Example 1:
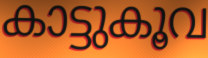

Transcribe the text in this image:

കാട്ടുകൂവ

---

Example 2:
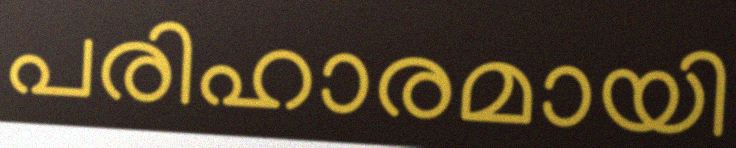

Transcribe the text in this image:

പരിഹാരമായി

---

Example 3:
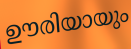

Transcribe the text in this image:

ഊരിയായും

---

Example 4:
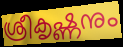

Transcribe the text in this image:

ശ്രീകൃഷ്ണനും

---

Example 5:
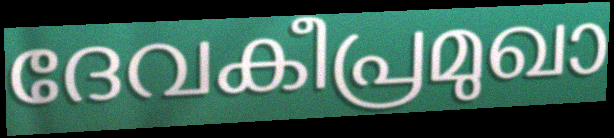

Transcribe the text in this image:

ദേവകീപ്രമുഖാ